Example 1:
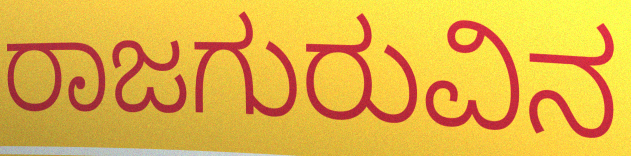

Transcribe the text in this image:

ರಾಜಗುರುವಿನ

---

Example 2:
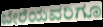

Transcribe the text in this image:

ಬೇರೆಯವರಿಗೂ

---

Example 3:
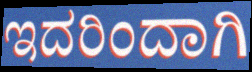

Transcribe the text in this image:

ಇದರಿಂದಾಗಿ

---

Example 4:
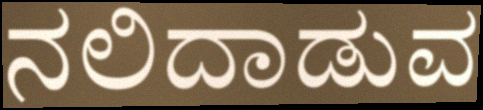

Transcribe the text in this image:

ನಲಿದಾಡುವ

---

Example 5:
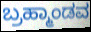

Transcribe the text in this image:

ಬ್ರಹ್ಮಾಂಡವ